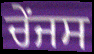
ਚੇਂਜਸ